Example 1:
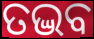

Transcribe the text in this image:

ତଦ୍ଭବ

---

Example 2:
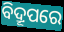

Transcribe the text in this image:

ବିଦ୍ରୂପରେ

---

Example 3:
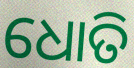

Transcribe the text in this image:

ଧୋତି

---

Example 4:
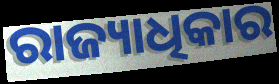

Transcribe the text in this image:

ରାଜ୍ୟାଧିକାର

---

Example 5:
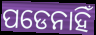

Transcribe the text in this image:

ପଡେନାହିଁ